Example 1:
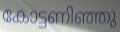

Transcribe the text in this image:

കോട്ടണിഞ്ഞു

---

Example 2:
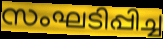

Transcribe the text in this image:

സംഘടിപ്പിച്ച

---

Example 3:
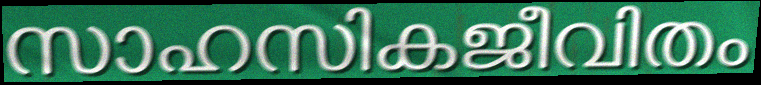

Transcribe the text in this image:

സാഹസികജീവിതം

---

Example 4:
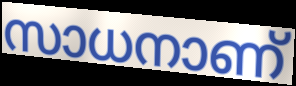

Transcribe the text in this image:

സാധനാണ്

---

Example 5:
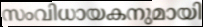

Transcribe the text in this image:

സംവിധായകനുമായി